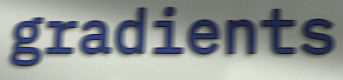
gradients